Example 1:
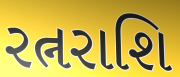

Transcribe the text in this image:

રત્નરાશિ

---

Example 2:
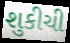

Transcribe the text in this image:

શુકીચી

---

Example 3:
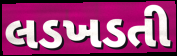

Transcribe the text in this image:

લડખડતી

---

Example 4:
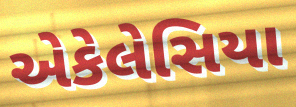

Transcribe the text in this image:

એકેલેસિયા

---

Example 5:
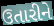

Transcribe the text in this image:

ઉતારીને